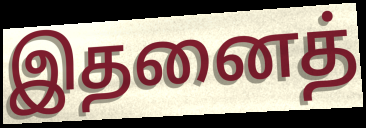
இதனைத்